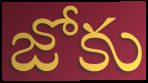
జోకు